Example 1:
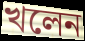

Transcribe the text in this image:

খলেন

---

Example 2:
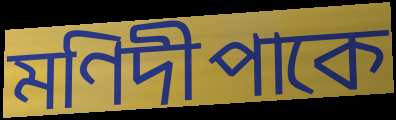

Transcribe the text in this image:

মণিদীপাকে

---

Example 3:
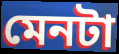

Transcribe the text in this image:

মেনটা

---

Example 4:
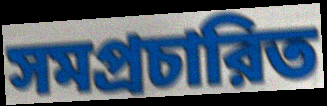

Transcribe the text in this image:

সমপ্রচারিত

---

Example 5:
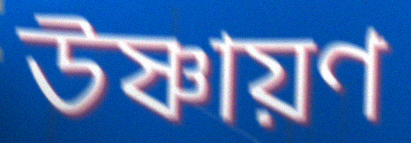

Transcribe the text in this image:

উষ্ণায়ণ